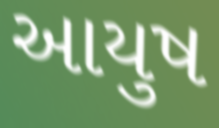
આયુષ